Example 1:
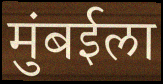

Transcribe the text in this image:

मुंबईला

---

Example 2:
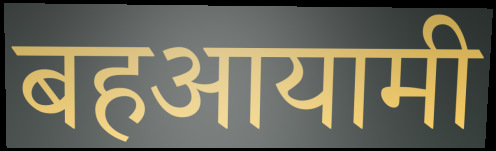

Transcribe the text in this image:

बहआयामी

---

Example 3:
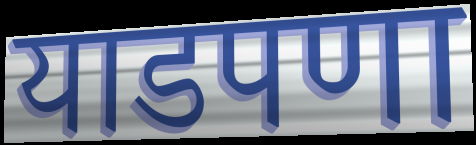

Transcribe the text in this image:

याडपणा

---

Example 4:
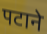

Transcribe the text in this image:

पटाने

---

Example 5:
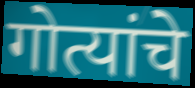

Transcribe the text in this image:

गोत्यांचे